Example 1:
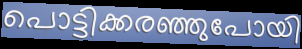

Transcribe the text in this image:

പൊട്ടിക്കരഞ്ഞുപോയി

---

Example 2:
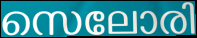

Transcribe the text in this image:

സെലോരി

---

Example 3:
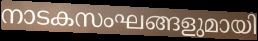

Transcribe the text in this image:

നാടകസംഘങ്ങളുമായി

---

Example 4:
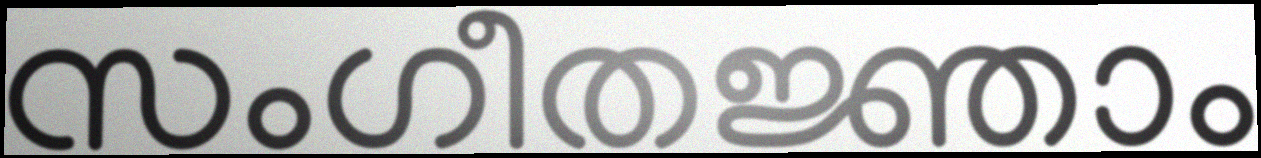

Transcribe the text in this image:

സംഗീതജ്ഞാം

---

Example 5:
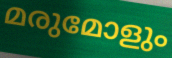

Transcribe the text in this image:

മരുമോളും